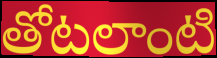
తోటలాంటి